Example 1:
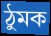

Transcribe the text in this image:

ঠুমক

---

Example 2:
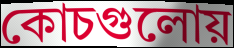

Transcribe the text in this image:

কোচগুলোয়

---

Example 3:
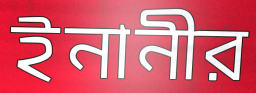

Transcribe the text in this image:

ইনানীর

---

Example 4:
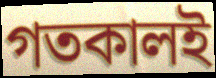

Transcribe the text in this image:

গতকালই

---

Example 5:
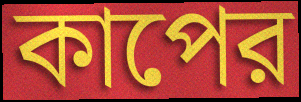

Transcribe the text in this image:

কাপের